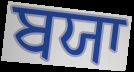
ਬਯਾ